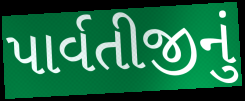
પાર્વતીજીનું